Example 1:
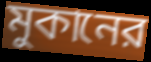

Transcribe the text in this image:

মুকানের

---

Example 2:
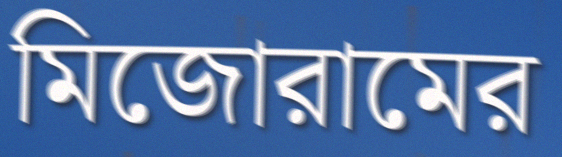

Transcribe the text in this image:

মিজোরামের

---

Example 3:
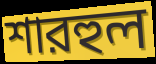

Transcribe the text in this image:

শারহুল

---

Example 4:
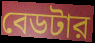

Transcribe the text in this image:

বেডটার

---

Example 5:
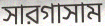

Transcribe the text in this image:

সারগাসাম